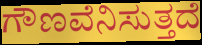
ಗೌಣವೆನಿಸುತ್ತದೆ